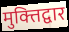
मुक्तिद्वार